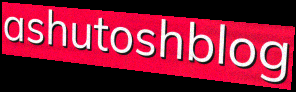
ashutoshblog